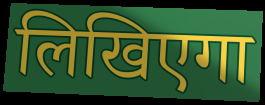
लिखिएगा